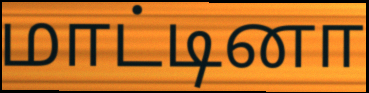
மாட்டினா